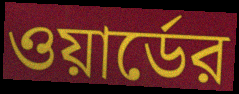
ওয়ার্ডের